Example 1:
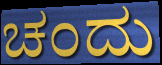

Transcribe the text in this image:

ಚಂದು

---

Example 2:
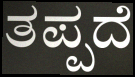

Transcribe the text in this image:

ತಪ್ಪದೆ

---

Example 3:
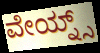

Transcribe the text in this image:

ವೇಯ್ನ್ಸ್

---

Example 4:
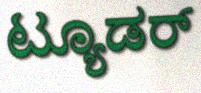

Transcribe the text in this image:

ಟ್ಯೂಡರ್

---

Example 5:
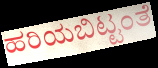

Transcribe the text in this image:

ಹರಿಯಬಿಟ್ಟಂತೆ